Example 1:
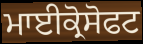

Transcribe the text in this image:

ਮਾਈਕ੍ਰੋਸੋਫਟ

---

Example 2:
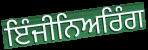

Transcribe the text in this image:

ਇੰਜੀਨਿਅਰਿੰਗ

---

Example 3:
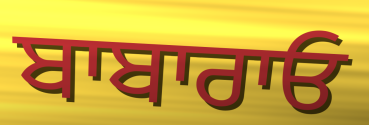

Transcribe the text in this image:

ਬਾਬਾਰਾਓ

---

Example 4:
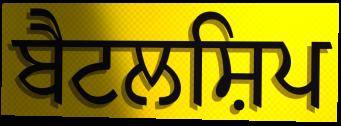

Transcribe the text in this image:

ਬੈਟਲਸ਼ਿਪ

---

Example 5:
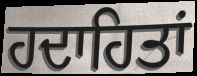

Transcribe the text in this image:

ਹਦਾਹਿਤਾਂ